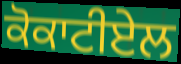
ਕੋਕਾਟੀਏਲ